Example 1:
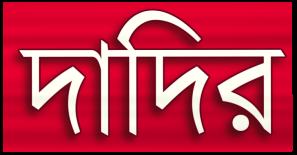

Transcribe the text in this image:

দাদির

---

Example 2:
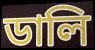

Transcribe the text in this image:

ডালি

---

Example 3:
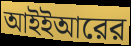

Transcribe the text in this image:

আইইআরের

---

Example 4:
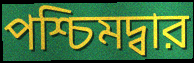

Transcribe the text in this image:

পশ্চিমদ্বার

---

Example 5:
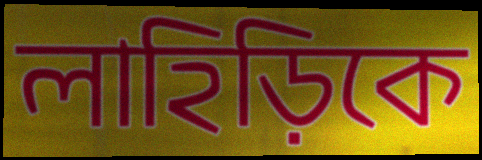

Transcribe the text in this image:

লাহিড়িকে